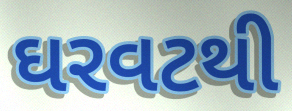
ઘરવટથી